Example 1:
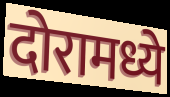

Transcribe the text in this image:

दोरामध्ये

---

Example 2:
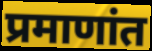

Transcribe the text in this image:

प्रमाणांत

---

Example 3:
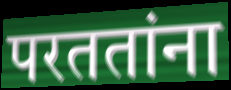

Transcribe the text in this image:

परततांना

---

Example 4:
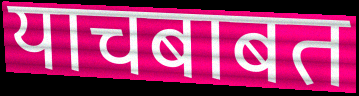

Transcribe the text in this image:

याचबाबत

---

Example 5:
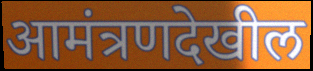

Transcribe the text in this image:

आमंत्रणदेखील